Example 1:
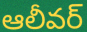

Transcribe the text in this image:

ఆలీవర్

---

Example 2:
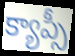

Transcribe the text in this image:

క్యాప్సీ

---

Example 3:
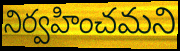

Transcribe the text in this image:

నిర్వహించమని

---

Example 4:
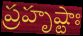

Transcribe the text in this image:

ప్రహృష్టాః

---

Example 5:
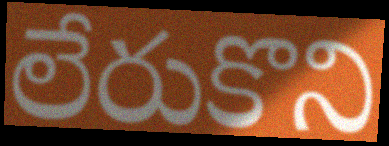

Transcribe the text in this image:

లేరుకొని